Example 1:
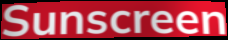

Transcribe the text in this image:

Sunscreen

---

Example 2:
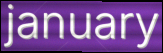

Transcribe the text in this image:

january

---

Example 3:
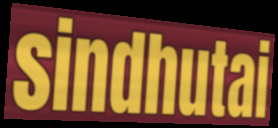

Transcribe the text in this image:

sindhutai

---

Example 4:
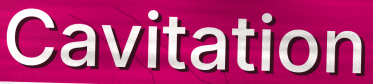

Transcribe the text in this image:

Cavitation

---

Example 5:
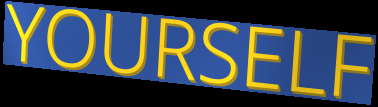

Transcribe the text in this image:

YOURSELF